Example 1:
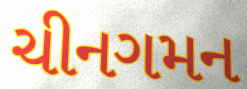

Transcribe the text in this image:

ચીનગમન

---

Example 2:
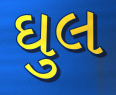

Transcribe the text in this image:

ઘુલ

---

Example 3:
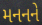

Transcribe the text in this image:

મનનને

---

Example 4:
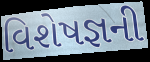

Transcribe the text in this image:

વિશેષજ્ઞની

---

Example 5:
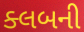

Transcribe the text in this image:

ક્લબની